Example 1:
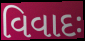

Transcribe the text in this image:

વિવાદઃ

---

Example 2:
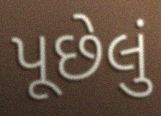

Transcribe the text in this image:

પૂછેલું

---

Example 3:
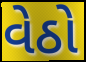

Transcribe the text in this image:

વેઠો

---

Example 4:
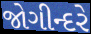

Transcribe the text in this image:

જોગીન્દરે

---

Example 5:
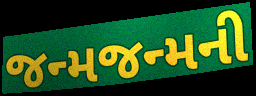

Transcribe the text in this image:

જન્મજન્મની